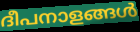
ദീപനാളങ്ങൾ